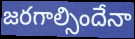
జరగాల్సిందేనా